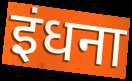
इंधना